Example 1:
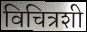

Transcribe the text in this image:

विचित्रशी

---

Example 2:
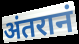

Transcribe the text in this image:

अंतरानं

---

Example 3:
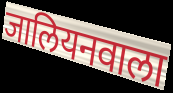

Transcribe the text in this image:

जालियनवाला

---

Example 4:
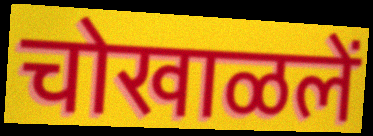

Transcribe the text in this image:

चोखाळलें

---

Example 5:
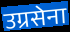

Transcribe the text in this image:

उग्रसेना